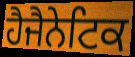
ਹੈਜੈਨੇਟਿਕ